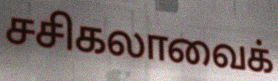
சசிகலாவைக்